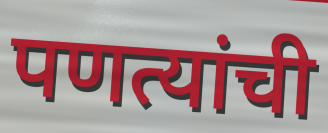
पणत्यांची